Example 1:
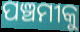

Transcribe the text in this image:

ପଞ୍ଚମୀକୁ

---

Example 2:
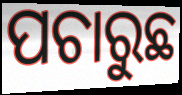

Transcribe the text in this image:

ପଚାରୁଛ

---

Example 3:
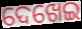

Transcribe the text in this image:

ଦେଖେଇ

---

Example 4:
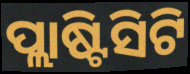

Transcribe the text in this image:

ପ୍ଲାଷ୍ଟିସିଟି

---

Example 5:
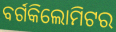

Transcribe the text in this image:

ବର୍ଗକିଲୋମିଟର